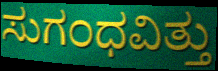
ಸುಗಂಧವಿತ್ತು